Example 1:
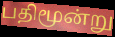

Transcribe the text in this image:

பதிமூன்று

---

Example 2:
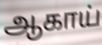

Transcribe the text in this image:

ஆகாய்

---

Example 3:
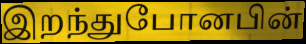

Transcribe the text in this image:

இறந்துபோனபின்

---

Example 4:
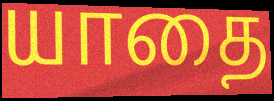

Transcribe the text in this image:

யாதை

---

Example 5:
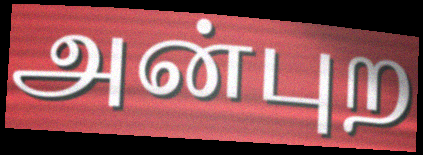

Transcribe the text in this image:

அன்புற